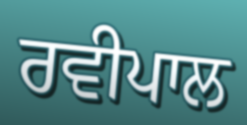
ਰਵੀਪਾਲ